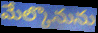
మేల్కొనును